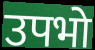
उपभो